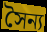
সৈন্য